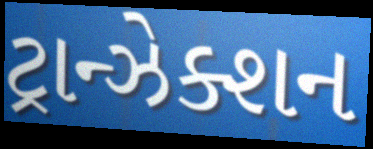
ટ્રાન્ઝેક્શન